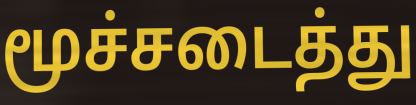
மூச்சடைத்து